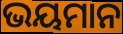
ଭୟମାନ